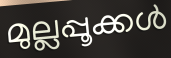
മുല്ലപ്പൂക്കൾ